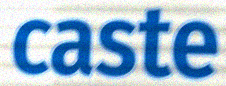
caste